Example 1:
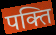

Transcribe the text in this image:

पक्ति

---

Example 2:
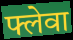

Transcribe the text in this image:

फ्लेवा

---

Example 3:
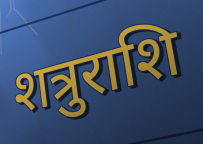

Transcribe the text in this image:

शत्रुराशि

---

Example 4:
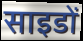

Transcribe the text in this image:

साइडों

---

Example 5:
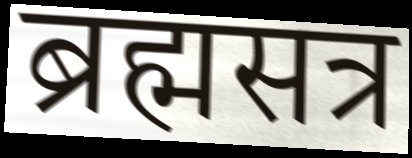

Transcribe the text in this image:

ब्रह्मसत्र